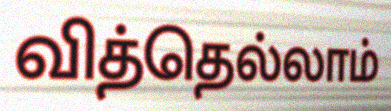
வித்தெல்லாம்